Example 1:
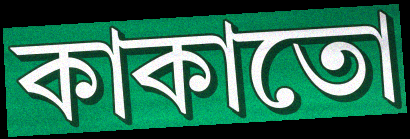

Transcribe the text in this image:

কাকাতো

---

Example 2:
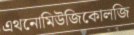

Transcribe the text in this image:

এথনোমিউজিকোলজি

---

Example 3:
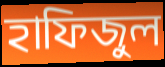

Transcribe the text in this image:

হাফিজুল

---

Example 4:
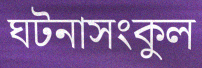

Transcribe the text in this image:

ঘটনাসংকুল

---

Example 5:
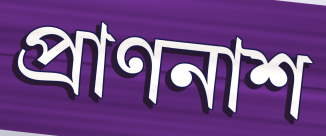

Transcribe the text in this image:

প্রাণনাশ